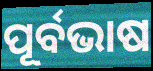
ପୂର୍ବଭାଷ